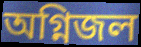
অগ্নিজল